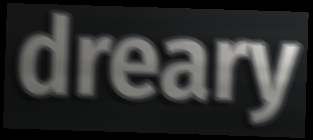
dreary